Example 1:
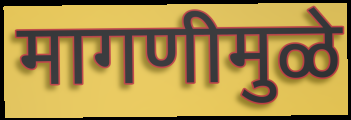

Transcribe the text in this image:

मागणीमुळे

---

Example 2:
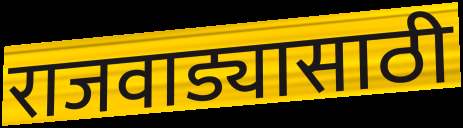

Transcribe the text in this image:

राजवाड्यासाठी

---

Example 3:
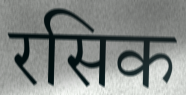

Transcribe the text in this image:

रसिक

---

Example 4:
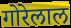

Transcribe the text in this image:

गोरेलाल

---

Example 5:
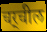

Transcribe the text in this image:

चर्चील